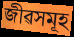
জীৱসমূহ